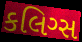
કલિગ્સ